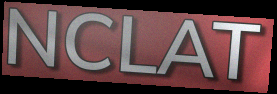
NCLAT